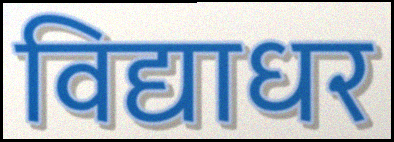
विद्याधर